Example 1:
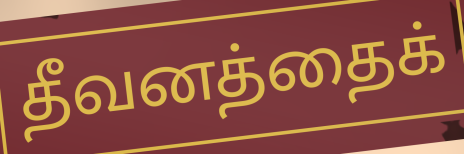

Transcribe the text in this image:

தீவனத்தைக்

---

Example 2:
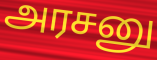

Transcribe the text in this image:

அரசனு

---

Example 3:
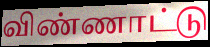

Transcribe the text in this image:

விண்ணாட்டு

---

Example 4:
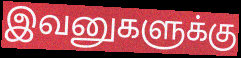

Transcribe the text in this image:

இவனுகளுக்கு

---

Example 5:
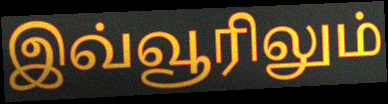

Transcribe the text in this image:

இவ்வூரிலும்